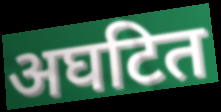
अघटित